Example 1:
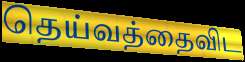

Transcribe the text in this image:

தெய்வத்தைவிட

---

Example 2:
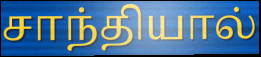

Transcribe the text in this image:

சாந்தியால்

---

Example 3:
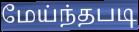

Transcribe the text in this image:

மேய்ந்தபடி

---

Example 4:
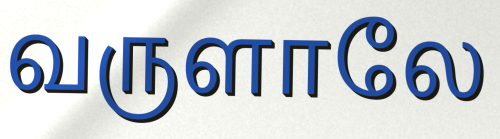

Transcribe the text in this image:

வருளாலே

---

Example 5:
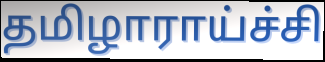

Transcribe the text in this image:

தமிழாராய்ச்சி